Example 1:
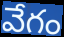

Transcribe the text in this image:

వేగం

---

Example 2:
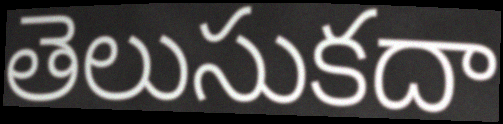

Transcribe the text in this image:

తెలుసుకదా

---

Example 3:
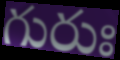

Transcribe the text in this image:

గురుః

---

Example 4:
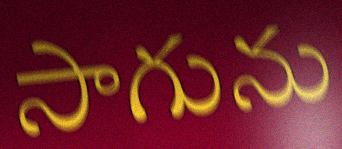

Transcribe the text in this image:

సాగును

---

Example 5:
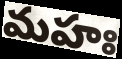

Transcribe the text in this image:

మహః